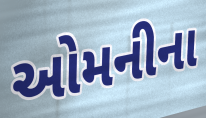
ઓમનીના